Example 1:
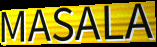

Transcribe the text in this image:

MASALA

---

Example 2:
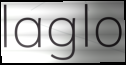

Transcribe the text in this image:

laglo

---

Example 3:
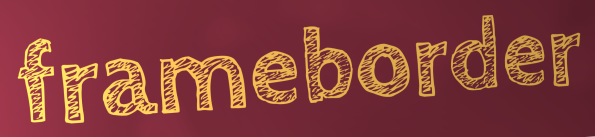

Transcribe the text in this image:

frameborder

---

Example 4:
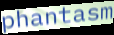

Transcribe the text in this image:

phantasm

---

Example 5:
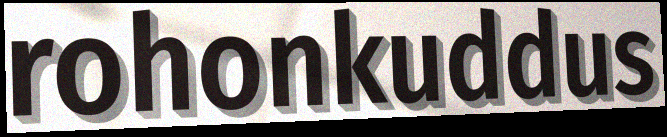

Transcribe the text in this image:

rohonkuddus